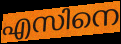
എസിനെ